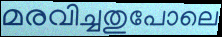
മരവിച്ചതുപോലെ